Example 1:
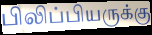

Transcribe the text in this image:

பிலிப்பியருக்கு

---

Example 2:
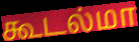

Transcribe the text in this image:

கூடல்மா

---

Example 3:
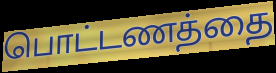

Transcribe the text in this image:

பொட்டணத்தை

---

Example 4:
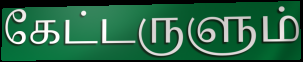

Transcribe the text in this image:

கேட்டருளும்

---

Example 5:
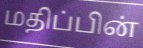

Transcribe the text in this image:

மதிப்பின்